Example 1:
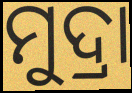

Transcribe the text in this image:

ମୁଦ୍ରା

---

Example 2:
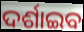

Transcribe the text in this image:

ଦର୍ଶାଇବ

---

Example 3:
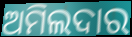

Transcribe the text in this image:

ଅମିଲଦାର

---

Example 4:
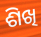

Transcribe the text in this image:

ଶିଖି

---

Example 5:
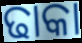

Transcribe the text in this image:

ଢାକା